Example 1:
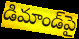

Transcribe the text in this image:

డిమాండ్‌పై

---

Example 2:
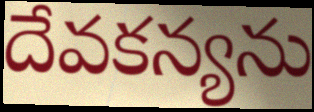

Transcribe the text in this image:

దేవకన్యను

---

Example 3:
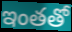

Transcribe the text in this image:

ఇంతతో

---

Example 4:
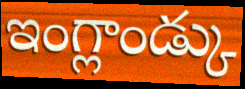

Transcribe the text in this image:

ఇంగ్లాండ్కు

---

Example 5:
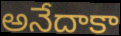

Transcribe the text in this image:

అనేదాకా